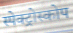
स्पेक्ट्रोस्कोप